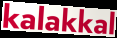
kalakkal